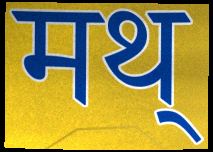
मथ्